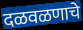
दळवळणाचे